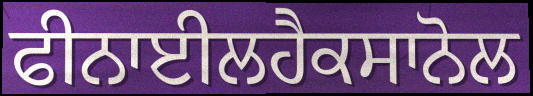
ਫੀਨਾਈਲਹੈਕਸਾਨੋਲ